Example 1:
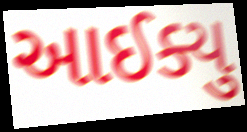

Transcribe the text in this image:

આઈક્યુ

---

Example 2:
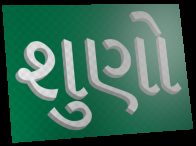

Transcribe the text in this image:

શુણો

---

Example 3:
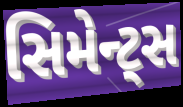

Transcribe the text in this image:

સિમેન્ટ્સ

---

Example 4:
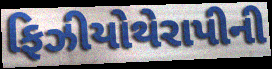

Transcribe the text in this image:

ફિઝીયોથેરાપીની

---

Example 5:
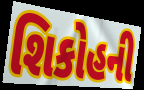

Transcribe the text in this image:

શિકોહની